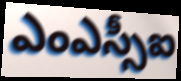
ఎంఎస్సీఐ